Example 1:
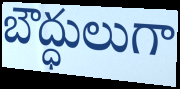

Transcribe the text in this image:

బౌద్ధులుగా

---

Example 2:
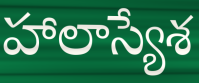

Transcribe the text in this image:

హాలాస్యేశ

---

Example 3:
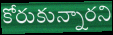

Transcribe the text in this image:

కోరుకున్నారని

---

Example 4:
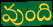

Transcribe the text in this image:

వుంది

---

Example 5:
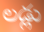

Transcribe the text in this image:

లడ్లు